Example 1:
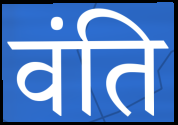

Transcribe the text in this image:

वंति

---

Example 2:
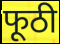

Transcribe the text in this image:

फूठी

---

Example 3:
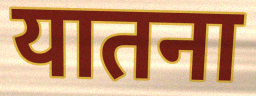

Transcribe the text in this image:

यातना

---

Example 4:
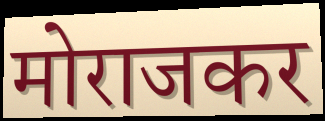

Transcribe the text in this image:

मोराजकर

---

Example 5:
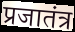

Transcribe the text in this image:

प्रजातंत्र